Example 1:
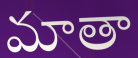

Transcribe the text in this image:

మాతా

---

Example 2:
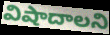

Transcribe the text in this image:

విషాదాలని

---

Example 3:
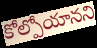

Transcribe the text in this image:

కోల్పోయానని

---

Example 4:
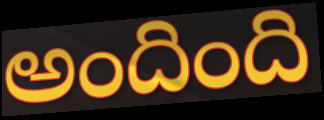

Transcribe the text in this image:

అందింది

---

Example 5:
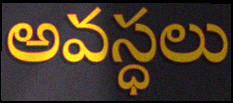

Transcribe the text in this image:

అవస్ధలు